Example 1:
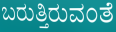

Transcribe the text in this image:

ಬರುತ್ತಿರುವಂತೆ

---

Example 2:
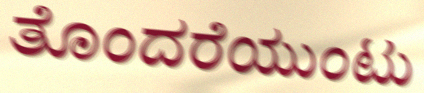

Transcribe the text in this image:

ತೊಂದರೆಯುಂಟು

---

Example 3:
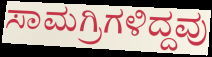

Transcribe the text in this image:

ಸಾಮಗ್ರಿಗಳಿದ್ದವು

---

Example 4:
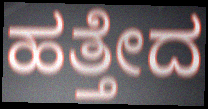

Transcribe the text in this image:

ಹತ್ತೇದ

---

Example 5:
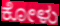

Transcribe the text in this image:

ಕೋಳು